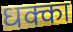
धक्का